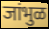
जांभुळ